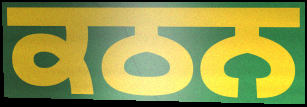
ਕਠਨ